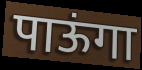
पाऊंगा